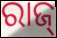
ରାଜ୍